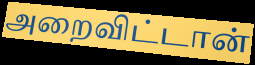
அறைவிட்டான்